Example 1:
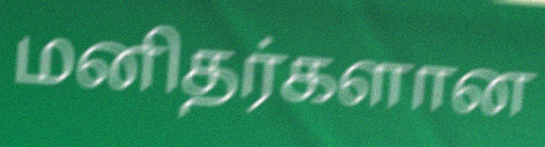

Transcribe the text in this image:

மனிதர்களான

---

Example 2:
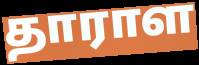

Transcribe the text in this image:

தாராள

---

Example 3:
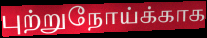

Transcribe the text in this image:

புற்றுநோய்க்காக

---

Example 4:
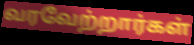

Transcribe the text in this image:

வரவேற்றார்கள்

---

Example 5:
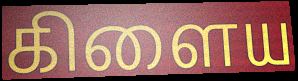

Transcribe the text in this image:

கிளைய